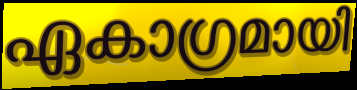
ഏകാഗ്രമായി